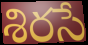
శిరసే